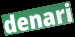
denari